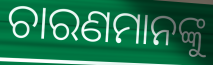
ଚାରଣମାନଙ୍କୁ